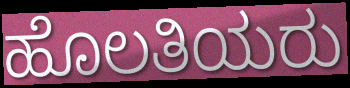
ಹೊಲತಿಯರು